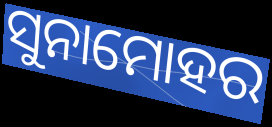
ସୁନାମୋହର